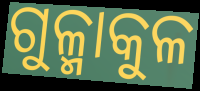
ଗୁଳ୍ମାକୁଳ